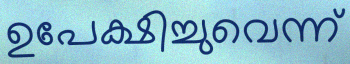
ഉപേക്ഷിച്ചുവെന്ന്